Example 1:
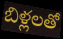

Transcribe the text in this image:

బిళ్లలతో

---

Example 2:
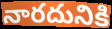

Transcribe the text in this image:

నారదునికి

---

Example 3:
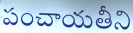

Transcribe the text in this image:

పంచాయతీని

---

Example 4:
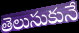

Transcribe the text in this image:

తెలుసుకునే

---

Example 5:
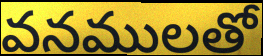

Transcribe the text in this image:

వనములతో